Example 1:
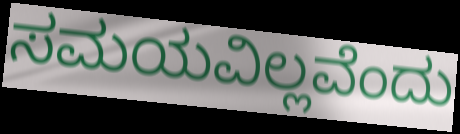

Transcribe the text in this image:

ಸಮಯವಿಲ್ಲವೆಂದು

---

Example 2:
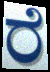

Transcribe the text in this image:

ರೆ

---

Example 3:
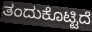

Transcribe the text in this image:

ತಂದುಕೊಟ್ಟಿದೆ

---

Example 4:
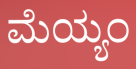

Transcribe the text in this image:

ಮೆಯ್ಯಂ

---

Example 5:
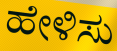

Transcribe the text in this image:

ಹೇಳಿಸು